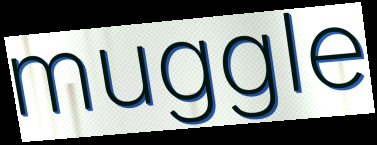
muggle